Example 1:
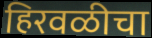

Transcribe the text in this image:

हिरवळीचा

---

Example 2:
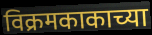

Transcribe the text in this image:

विक्रमकाकाच्या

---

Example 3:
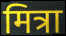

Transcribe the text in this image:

मित्रा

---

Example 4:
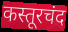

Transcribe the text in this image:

कस्तूरचंद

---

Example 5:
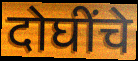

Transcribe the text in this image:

दोघींचे